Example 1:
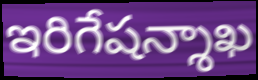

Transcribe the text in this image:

ఇరిగేషన్శాఖ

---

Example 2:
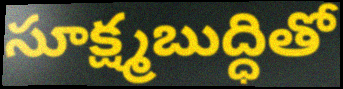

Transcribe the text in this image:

సూక్ష్మబుద్ధితో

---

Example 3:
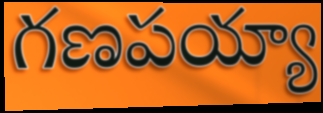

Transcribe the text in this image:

గణపయ్యా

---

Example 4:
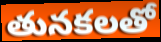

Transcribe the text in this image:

తునకలతో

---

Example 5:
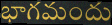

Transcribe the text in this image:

భాగమందు